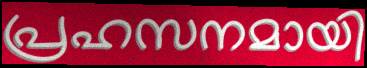
പ്രഹസനമായി